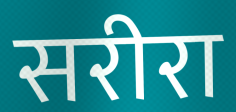
सरीरा